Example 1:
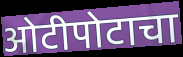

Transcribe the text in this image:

ओटीपोटाचा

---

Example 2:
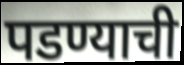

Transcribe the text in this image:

पडण्याची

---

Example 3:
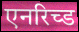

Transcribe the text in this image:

एनरिच्ड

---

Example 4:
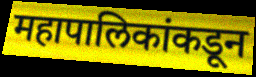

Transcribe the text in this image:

महापालिकांकडून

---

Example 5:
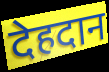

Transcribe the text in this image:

देहदान